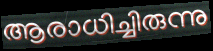
ആരാധിച്ചിരുന്നു